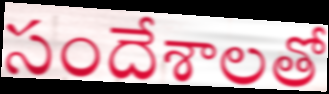
సందేశాలతో